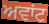
ਅਵਾਂਟ